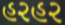
હરહર